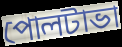
পোলটাভা